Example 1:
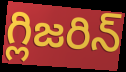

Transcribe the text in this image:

గ్లిజరిన్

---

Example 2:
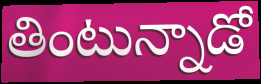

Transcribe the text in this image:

తింటున్నాడో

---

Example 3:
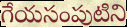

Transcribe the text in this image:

గేయసంపుటిని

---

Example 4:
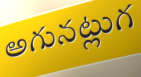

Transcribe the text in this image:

అగునట్లుగ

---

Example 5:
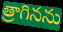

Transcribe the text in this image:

త్రాగినను